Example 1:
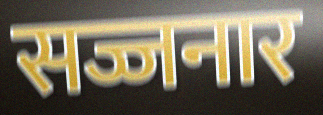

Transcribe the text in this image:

सज्जनार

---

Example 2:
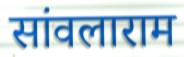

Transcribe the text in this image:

सांवलाराम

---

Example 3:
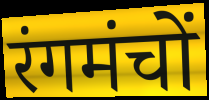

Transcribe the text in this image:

रंगमंचों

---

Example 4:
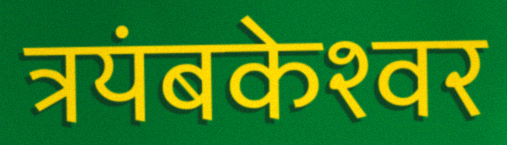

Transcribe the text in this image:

त्रयंबकेश्वर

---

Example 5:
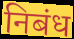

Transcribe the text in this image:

निबंध